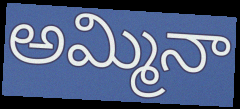
అమ్మినా